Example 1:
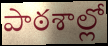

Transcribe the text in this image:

పాఠశాల్లో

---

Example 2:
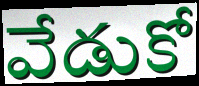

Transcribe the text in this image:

వేడుకో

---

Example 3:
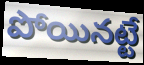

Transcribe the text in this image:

పోయినట్టే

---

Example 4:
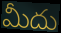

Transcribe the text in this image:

మీదు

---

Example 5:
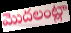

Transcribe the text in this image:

మొదలంట్లా